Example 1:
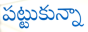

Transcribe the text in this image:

పట్టుకున్నా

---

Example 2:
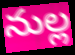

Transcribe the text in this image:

నుల్ల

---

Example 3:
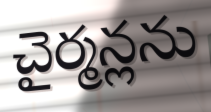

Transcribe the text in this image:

చైర్మన్లను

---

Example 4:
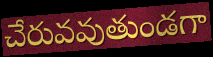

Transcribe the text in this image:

చేరువవుతుండగా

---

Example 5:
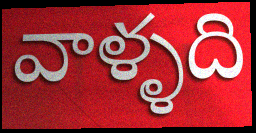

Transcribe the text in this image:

వాళ్ళది